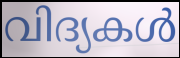
വിദ്യകൾ